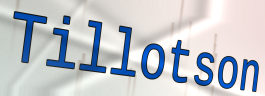
Tillotson